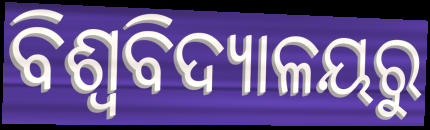
ବିଶ୍ୱବିଦ୍ୟାଳୟରୁ